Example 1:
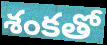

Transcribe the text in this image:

శంకతో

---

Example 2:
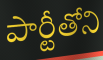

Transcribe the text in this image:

పార్టీతోని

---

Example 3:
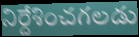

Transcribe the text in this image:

నిర్దేశించగలడు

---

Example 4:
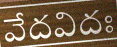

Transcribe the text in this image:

వేదవిదః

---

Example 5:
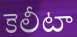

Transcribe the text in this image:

కెలీటా